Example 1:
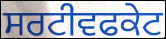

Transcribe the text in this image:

ਸਰਟੀਵਫਕੇਟ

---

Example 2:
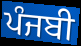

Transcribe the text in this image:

ਪੰਜਬੀ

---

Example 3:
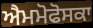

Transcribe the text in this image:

ਐਮਮੋਫੋਸਕਾ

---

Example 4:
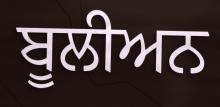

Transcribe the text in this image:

ਬੂਲੀਅਨ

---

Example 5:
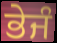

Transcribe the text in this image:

ਭੇਜੰ